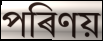
পৰিণয়